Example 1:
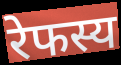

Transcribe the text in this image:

रेफस्य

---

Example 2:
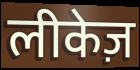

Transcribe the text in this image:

लीकेज़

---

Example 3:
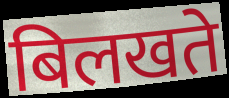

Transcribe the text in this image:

बिलखते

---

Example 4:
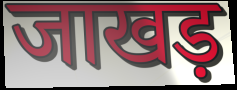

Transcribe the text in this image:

जाखड़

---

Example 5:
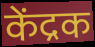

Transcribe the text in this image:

केंद्रक